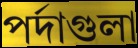
পর্দাগুলা